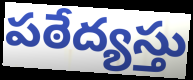
పఠేద్యస్తు